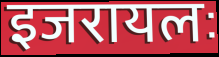
इजरायलः